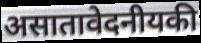
असातावेदनीयकी